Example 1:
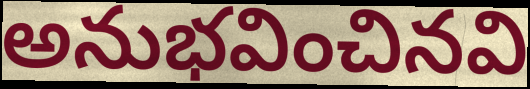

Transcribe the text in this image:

అనుభవించినవి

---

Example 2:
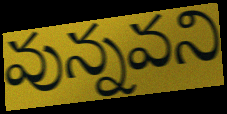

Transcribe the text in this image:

వున్నవని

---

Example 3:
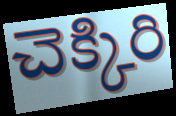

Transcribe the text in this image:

చెక్కిరి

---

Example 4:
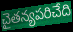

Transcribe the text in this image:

చైతన్యపరిచేది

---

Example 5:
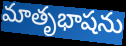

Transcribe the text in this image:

మాతృభాషను